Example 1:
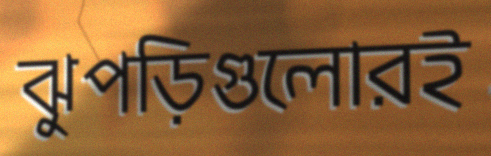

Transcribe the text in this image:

ঝুপড়িগুলোরই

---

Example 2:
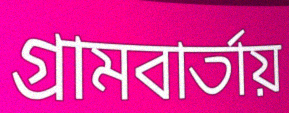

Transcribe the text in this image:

গ্রামবার্তায়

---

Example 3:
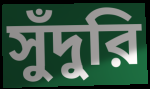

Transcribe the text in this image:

সুঁদুরি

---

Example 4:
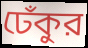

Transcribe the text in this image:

ঢেঁকুর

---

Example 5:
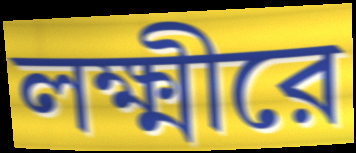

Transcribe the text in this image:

লক্ষ্মীরে